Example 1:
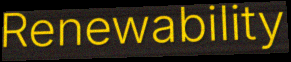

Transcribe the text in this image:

Renewability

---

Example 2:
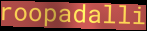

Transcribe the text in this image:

roopadalli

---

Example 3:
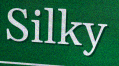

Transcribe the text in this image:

Silky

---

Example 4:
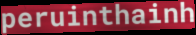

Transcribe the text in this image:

peruinthainh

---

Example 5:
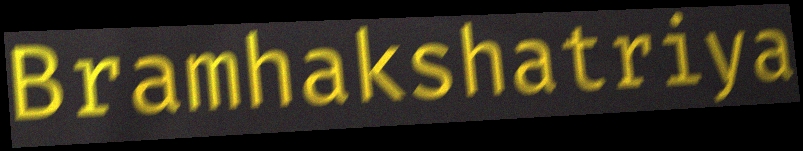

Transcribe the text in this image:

Bramhakshatriya